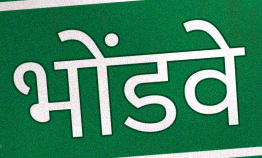
भोंडवे